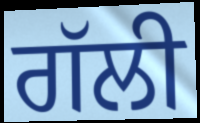
ਗੱਲੀ